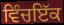
ਵਿੰਚਇੱਕ